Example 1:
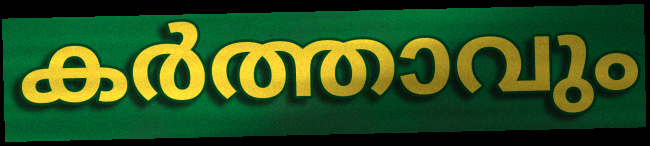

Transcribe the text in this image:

കർത്താവും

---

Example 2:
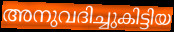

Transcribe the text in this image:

അനുവദിച്ചുകിട്ടിയ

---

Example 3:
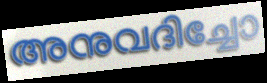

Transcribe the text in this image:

അനുവദിച്ചോ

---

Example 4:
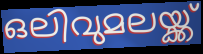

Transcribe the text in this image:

ഒലിവുമലയ്ക്ക്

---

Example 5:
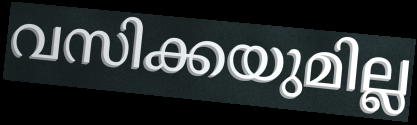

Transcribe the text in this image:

വസിക്കയുമില്ല